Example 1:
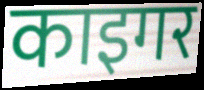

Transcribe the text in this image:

काइगर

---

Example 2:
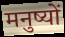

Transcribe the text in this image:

मनुष्यों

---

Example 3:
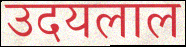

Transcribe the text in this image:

उदयलाल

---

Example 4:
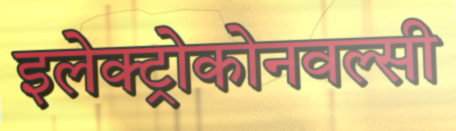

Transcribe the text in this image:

इलेक्ट्रोकोनवल्सी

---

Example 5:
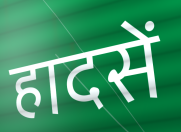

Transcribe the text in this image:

हादसें